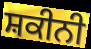
ਸ਼ਕੀਨੀ